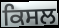
ਕਿਸਲ